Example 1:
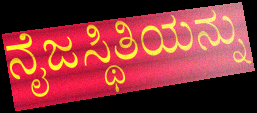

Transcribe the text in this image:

ನೈಜಸ್ಥಿತಿಯನ್ನು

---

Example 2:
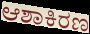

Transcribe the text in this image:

ಆಶಾಕಿರಣ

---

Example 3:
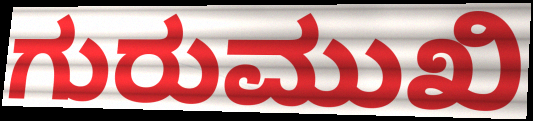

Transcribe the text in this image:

ಗುರುಮುಖಿ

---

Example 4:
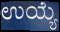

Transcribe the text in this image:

ಉಯ್ಯೆ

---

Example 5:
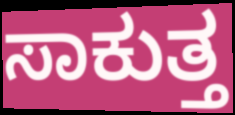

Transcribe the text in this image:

ಸಾಕುತ್ತ